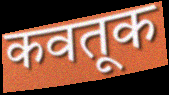
कवतूक